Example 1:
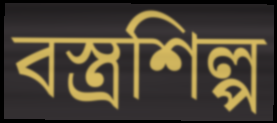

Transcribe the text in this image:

বস্ত্ৰশিল্প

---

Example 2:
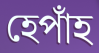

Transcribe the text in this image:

হেপাঁহ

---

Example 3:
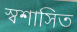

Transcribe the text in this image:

স্বশাসিত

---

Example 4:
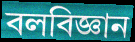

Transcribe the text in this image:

বলবিজ্ঞান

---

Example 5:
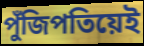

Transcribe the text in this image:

পুঁজিপতিয়েই